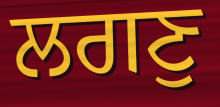
ਲਗਣੁ